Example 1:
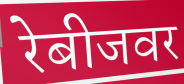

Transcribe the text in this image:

रेबीजवर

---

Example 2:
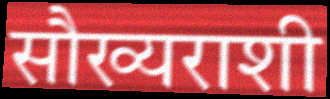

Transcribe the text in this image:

सौख्यराशी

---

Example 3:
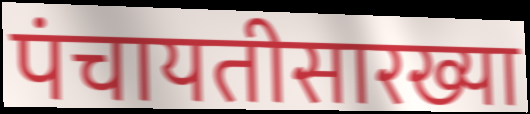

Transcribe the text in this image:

पंचायतीसारख्या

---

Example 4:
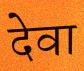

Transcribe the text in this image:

देवा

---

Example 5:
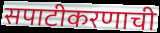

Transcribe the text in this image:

सपाटीकरणाची